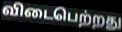
விடைபெற்றது